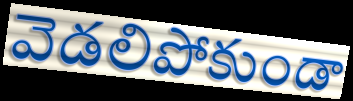
వెడలిపోకుండా